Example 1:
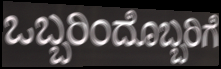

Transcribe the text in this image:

ಒಬ್ಬರಿಂದೊಬ್ಬರಿಗೆ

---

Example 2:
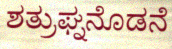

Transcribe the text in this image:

ಶತ್ರುಘ್ನನೊಡನೆ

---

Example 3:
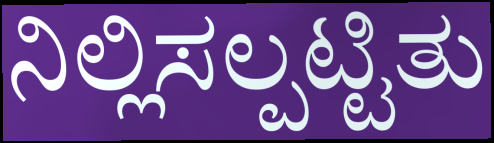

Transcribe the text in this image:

ನಿಲ್ಲಿಸಲ್ಪಟ್ಟಿತು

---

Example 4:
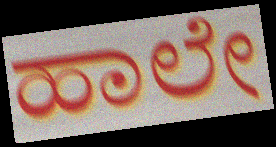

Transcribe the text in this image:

ಹಾಲೇ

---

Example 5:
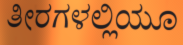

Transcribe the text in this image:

ತೀರಗಳಲ್ಲಿಯೂ